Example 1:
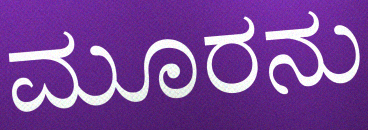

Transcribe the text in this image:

ಮೂರನು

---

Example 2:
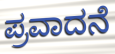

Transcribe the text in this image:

ಪ್ರವಾದನೆ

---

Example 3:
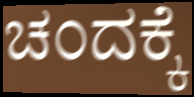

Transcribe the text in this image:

ಚಂದಕ್ಕೆ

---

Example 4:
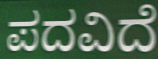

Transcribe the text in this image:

ಪದವಿದೆ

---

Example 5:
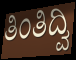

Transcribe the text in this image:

ತಿಂತಿದ್ವಿ